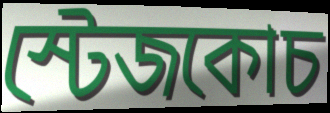
স্টেজকোচ